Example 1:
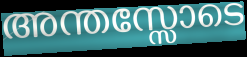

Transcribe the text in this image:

അന്തസ്സോടെ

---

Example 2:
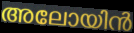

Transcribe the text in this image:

അലോയിൻ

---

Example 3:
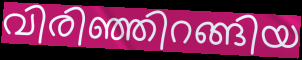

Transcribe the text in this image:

വിരിഞ്ഞിറങ്ങിയ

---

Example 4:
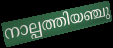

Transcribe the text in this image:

നാല്പത്തിയഞ്ചു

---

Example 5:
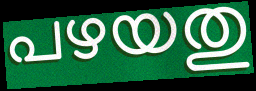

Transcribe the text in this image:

പഴയതു